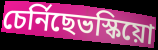
চেৰ্নিছেভস্কিয়ো